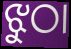
ଝୁଠା